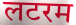
लटरम